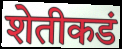
शेतीकडं